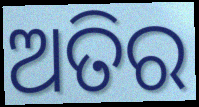
ଅତିର